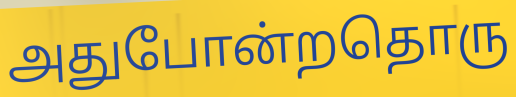
அதுபோன்றதொரு